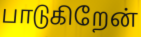
பாடுகிறேன்